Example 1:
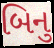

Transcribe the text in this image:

બિનુ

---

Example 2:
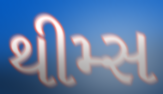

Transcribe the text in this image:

થીમ્સ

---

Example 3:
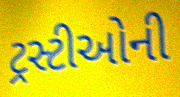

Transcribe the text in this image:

ટ્રસ્ટીઓની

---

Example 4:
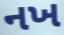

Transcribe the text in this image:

નખ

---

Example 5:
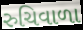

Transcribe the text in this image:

રુચિવાળા